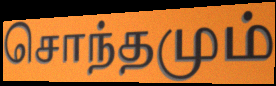
சொந்தமும்